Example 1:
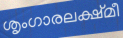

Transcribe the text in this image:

ശൃംഗാരലക്ഷ്മീ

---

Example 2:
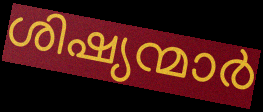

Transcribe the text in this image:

ശിഷ്യന്മാർ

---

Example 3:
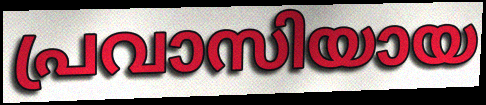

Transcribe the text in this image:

പ്രവാസിയായ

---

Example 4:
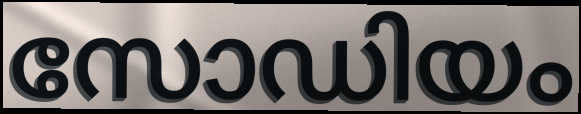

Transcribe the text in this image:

സോഡിയം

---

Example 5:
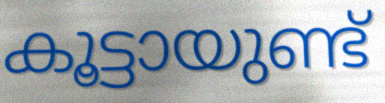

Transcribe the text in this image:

കൂട്ടായുണ്ട്